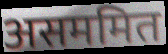
असममित